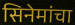
सिनेमांचा